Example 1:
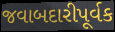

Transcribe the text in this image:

જવાબદારીપૂર્વક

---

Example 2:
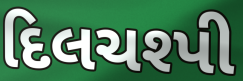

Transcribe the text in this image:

દિલચશ્પી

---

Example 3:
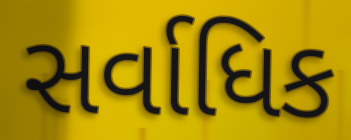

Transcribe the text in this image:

સર્વાધિક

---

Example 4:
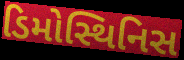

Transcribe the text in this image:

ડિમોસ્થિનિસ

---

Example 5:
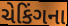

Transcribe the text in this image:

ચેકિંગના